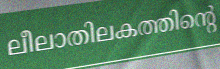
ലീലാതിലകത്തിന്റെ